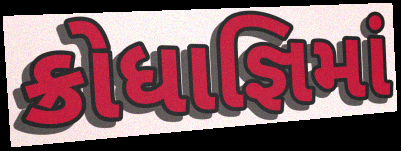
ક્રોધાજ્ઞિમાં